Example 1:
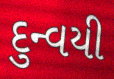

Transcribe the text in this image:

દુન્વયી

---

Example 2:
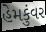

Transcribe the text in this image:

હેમકુંવર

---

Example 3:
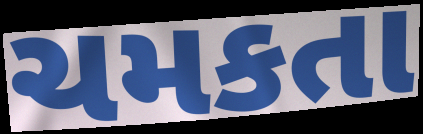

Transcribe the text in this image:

ચમકતા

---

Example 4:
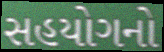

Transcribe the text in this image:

સહયોગનો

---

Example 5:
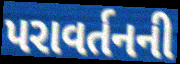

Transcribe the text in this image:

પરાવર્તનની